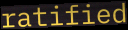
ratified